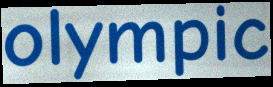
olympic